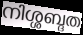
നിശ്ശബ്ദത